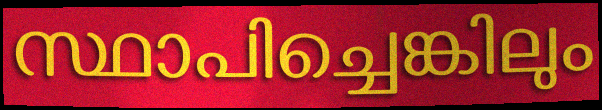
സ്ഥാപിച്ചെങ്കിലും